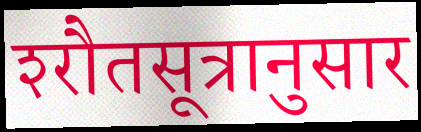
श्रौतसूत्रानुसार